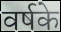
वर्षके